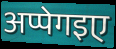
अप्पेगइए